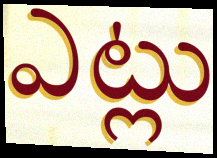
ఎట్లు